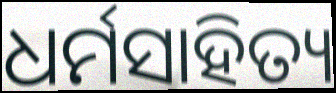
ଧର୍ମସାହିତ୍ୟ